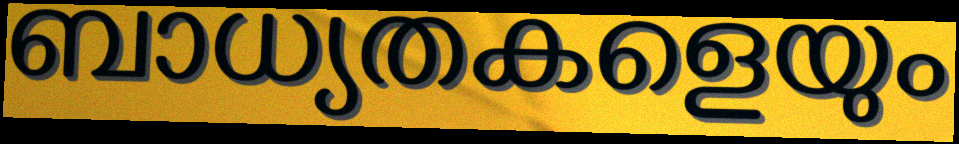
ബാധ്യതകളെയും